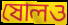
ষোলও